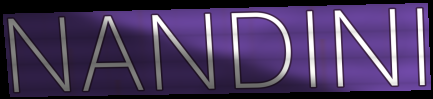
NANDINI